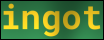
ingot